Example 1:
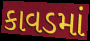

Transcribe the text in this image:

કાવડમાં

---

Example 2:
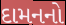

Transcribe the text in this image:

દામનનો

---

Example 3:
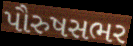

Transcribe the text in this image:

પૌરુષસભર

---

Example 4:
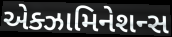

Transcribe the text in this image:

એક્ઝામિનેશન્સ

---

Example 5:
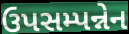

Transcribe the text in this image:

ઉપસમ્પન્નેન